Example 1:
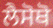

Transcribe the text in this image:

ਲੈਸੋਥੋ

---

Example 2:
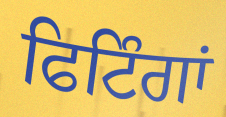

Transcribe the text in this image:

ਫਿਟਿੰਗਾਂ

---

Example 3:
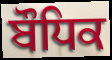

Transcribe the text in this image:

ਬੌਧਿਕ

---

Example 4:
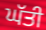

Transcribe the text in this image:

ਘੱਤੀ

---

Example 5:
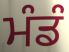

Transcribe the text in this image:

ਮੰਡੰ